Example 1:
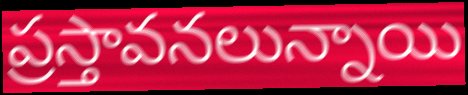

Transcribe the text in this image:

ప్రస్తావనలున్నాయి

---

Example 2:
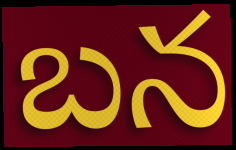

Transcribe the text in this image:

బన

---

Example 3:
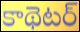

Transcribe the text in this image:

కాథెటర్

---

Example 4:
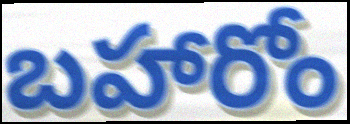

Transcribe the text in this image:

బహారోం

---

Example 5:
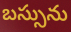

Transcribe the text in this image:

బస్సును